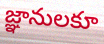
జ్ఞానులకూ